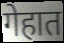
गेहात